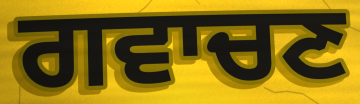
ਗਵਾਚਣ